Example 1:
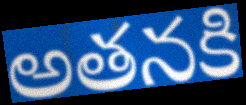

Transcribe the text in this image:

అతనకి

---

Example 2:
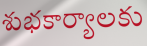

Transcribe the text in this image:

శుభకార్యాలకు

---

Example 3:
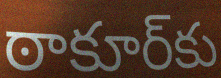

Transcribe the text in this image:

ఠాకూర్‌కు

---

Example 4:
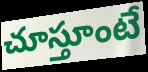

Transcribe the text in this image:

చూస్తూంటే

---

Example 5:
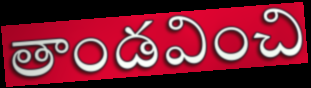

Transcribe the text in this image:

తాండవించి